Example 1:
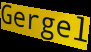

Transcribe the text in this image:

Gergel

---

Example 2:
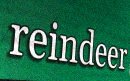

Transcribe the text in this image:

reindeer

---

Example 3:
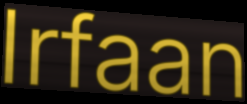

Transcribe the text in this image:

Irfaan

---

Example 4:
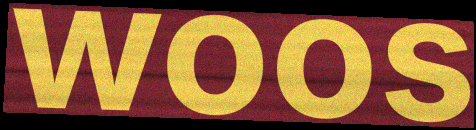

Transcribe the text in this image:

woos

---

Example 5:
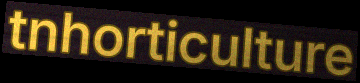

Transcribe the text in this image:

tnhorticulture